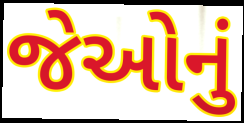
જેઓનું